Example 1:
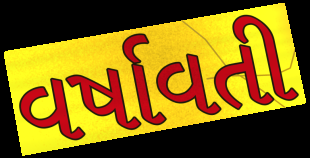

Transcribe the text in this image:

વર્ષાવતી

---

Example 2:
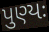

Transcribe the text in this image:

પુણ્યઃ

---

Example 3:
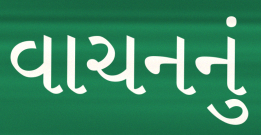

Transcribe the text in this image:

વાચનનું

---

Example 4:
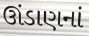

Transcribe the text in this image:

ઊંડાણનાં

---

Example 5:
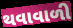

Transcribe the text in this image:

થવાવાળી